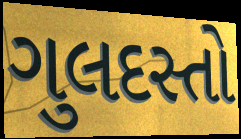
ગુલદસ્તો